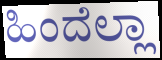
ಹಿಂದೆಲ್ಲಾ